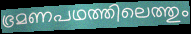
ഭ്രമണപഥത്തിലെത്തും